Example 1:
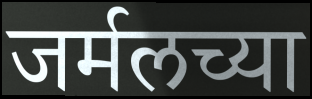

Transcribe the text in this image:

जर्मलच्या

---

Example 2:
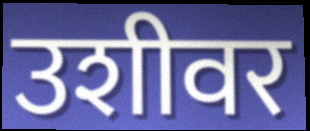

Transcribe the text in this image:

उशीवर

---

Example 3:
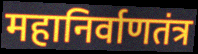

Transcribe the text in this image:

महानिर्वाणतंत्र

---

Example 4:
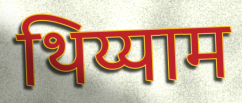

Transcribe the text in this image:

थिय्याम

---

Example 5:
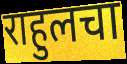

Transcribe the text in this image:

राहुलचा